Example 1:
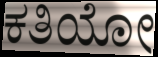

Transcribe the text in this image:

ಕತಿಯೋ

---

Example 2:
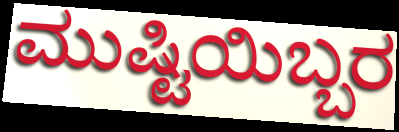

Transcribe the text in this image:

ಮುಷ್ಟಿಯಿಬ್ಬರ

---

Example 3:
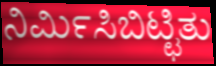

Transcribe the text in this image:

ನಿರ್ಮಿಸಿಬಿಟ್ಟಿತು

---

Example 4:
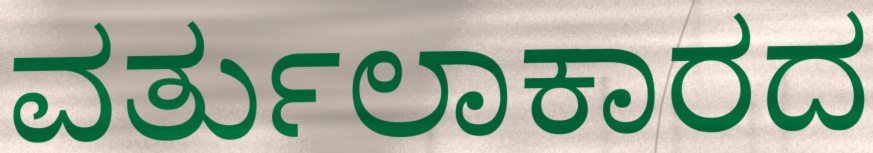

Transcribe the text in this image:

ವರ್ತುಲಾಕಾರದ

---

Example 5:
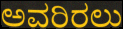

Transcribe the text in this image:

ಅವರಿರಲು